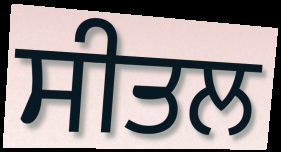
ਸੀਤਲ